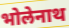
भोलेनाथ